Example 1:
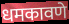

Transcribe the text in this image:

धमकावणे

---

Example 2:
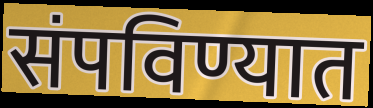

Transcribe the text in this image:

संपविण्यात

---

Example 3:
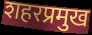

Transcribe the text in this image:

शहरप्रमुख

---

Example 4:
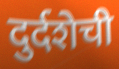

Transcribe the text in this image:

दुर्दशेची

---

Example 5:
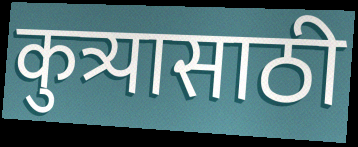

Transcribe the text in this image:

कुत्र्यासाठी